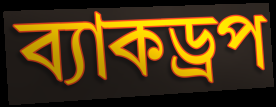
ব্যাকড্রপ